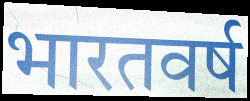
भारतवर्ष